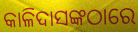
କାଳିଦାସଙ୍କଠାରେ